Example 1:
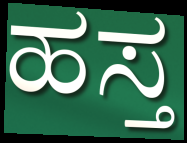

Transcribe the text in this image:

ಹಸ್ತ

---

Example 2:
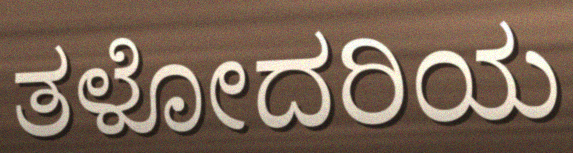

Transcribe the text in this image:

ತಳೋದರಿಯ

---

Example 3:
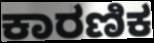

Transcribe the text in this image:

ಕಾರಣಿಕ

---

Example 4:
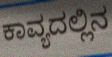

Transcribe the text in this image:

ಕಾವ್ಯದಲ್ಲಿನ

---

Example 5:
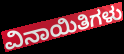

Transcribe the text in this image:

ವಿನಾಯಿತಿಗಳು